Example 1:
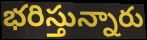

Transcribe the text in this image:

భరిస్తున్నారు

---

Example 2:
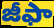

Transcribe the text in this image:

జీఫా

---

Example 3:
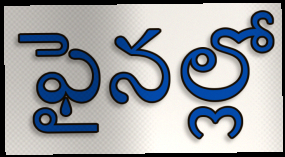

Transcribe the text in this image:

ఫైనల్లో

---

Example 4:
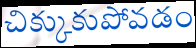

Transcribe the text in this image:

చిక్కుకుపోవడం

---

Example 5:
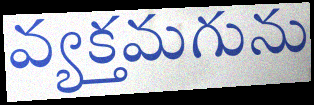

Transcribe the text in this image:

వ్యక్తమగును